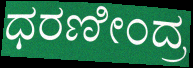
ಧರಣೀಂದ್ರ